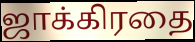
ஜாக்கிரதை